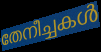
തേനീച്ചകൾ